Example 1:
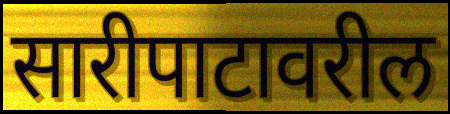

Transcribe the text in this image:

सारीपाटावरील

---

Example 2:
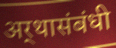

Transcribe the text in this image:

अर्थासंबंधी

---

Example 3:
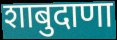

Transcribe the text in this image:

शाबुदाणा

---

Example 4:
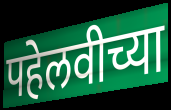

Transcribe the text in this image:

पहेलवीच्या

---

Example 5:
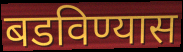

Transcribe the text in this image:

बडविण्यास